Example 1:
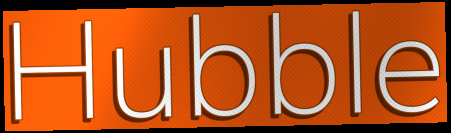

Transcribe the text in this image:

Hubble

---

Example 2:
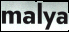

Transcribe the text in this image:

malya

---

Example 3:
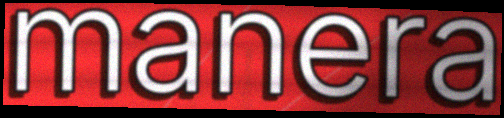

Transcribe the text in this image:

manera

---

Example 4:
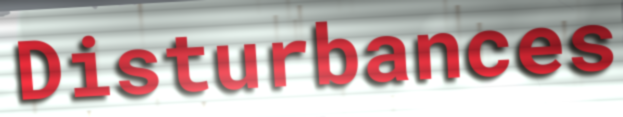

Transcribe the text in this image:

Disturbances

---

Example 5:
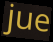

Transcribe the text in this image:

jue